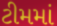
ટીમમાં